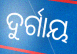
ଦୁର୍ଗାୟ